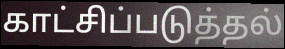
காட்சிப்படுத்தல்